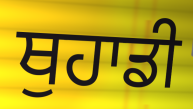
ਥੁਹਾਡੀ